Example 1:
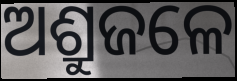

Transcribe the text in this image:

ଅଶ୍ରୁଜଳେ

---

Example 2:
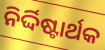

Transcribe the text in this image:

ନିର୍ଦ୍ଦିଷ୍ଟାର୍ଥକ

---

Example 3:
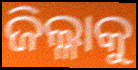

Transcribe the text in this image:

ଜିଲ୍ଳାକୁ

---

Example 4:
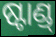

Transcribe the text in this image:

ଷ୍ଟାଣ୍ଡ୍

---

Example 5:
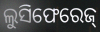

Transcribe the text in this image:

ଲୁସିଫେରେଜ୍